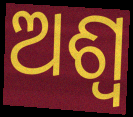
ଅଶ୍ବ